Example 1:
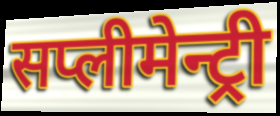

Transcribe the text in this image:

सप्लीमेन्ट्री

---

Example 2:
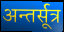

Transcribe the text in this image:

अन्तर्सूत्र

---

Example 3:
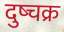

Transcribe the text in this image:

दुष्चक्र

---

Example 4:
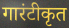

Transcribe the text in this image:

गारंटीकृत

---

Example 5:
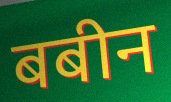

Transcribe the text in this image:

बबीन